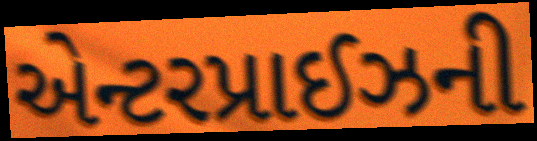
એન્ટરપ્રાઈઝની